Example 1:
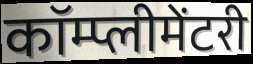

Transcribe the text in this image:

कॉम्प्लीमेंटरी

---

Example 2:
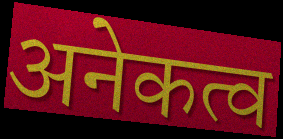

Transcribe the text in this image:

अनेकत्व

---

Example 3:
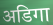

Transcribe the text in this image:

अडिगा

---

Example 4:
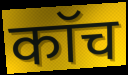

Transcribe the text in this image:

कॉच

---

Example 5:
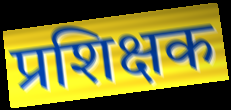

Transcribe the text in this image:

प्रशिक्षक